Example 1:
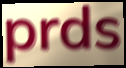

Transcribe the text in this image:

prds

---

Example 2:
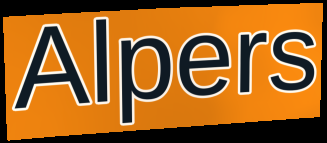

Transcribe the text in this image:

Alpers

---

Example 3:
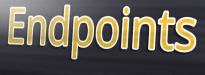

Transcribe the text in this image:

Endpoints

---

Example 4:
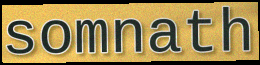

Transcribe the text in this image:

somnath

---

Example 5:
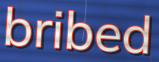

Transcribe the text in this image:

bribed